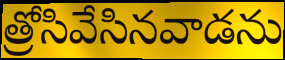
త్రోసివేసినవాడను